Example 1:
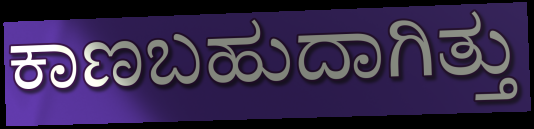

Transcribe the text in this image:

ಕಾಣಬಹುದಾಗಿತ್ತು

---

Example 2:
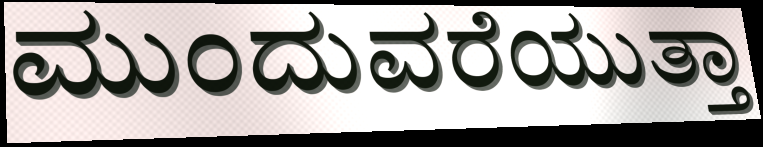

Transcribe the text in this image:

ಮುಂದುವರೆಯುತ್ತಾ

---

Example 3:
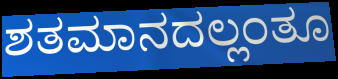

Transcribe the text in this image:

ಶತಮಾನದಲ್ಲಂತೂ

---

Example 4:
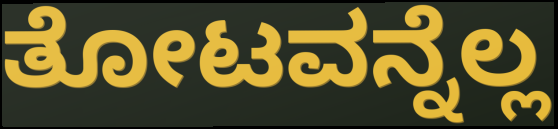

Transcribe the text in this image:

ತೋಟವನ್ನೆಲ್ಲ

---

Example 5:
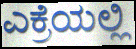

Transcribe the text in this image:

ಎಕ್ರೆಯಲ್ಲಿ